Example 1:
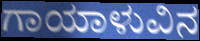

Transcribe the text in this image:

ಗಾಯಾಳುವಿನ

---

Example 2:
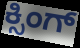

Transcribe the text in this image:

ಕ್ಸಿಂಗ್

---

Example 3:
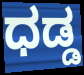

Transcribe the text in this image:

ಧಡ್ಡ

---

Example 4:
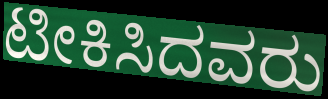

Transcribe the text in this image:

ಟೀಕಿಸಿದವರು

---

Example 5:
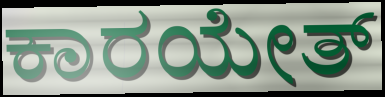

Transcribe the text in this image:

ಕಾರಯೇತ್